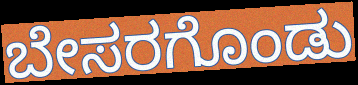
ಬೇಸರಗೊಂಡು